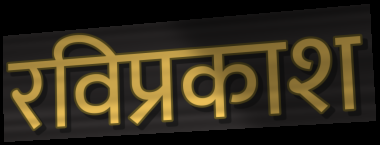
रविप्रकाश